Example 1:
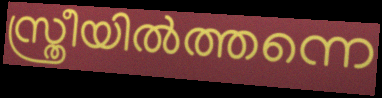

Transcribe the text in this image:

സ്ത്രീയിൽത്തന്നെ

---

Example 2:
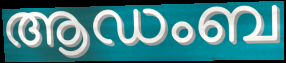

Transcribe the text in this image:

ആഡംബ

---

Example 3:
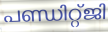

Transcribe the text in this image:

പണ്ഡിറ്റ്ജി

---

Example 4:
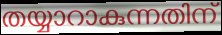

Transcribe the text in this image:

തയ്യാറാകുന്നതിന്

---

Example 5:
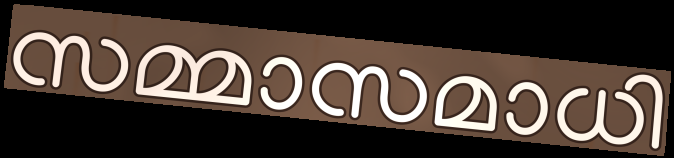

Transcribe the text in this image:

സമ്മാസമാധി